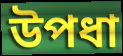
উপধা